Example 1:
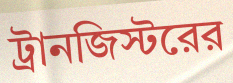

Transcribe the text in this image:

ট্রানজিস্টরের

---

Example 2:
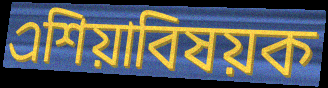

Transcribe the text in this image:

এশিয়াবিষয়ক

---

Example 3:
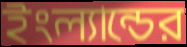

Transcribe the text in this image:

ইংল্যান্ডের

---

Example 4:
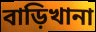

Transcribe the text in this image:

বাড়িখানা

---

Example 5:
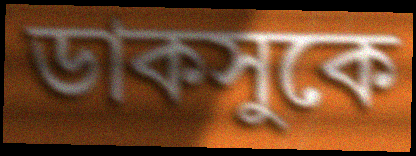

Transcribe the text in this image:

ডাকসুকে